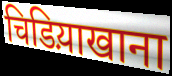
चिडिय़ाखाना